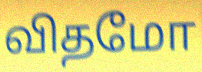
விதமோ